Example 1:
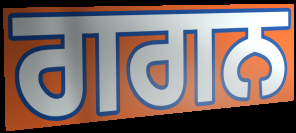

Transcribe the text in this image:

ਗਗਨ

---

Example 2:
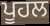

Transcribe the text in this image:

ਪੂਹਲ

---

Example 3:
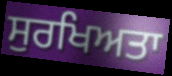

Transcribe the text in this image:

ਸੁਰਖਿਅਤਾ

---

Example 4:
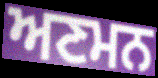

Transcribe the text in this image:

ਅਣਮਨ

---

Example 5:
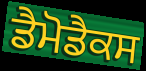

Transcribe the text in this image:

ਡੈਮੋਡੈਕਸ